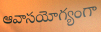
ఆవాసయోగ్యంగా